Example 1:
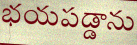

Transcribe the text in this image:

భయపడ్డాను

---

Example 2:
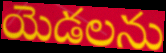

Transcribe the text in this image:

యెడలను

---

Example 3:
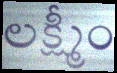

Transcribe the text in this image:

లక్ష్మీం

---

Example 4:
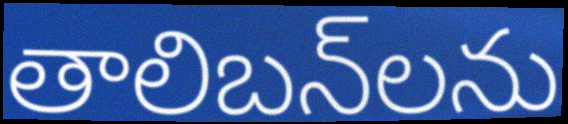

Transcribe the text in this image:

తాలిబన్‌లను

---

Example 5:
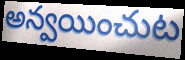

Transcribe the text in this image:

అన్వయించుట